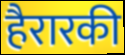
हैरारकी